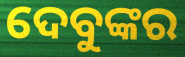
ଦେବୁଙ୍କର